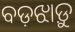
ବଡ଼ଝାଡ଼ୁ